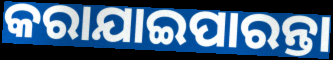
କରାଯାଇପାରନ୍ତା